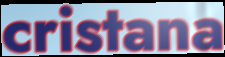
cristana